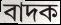
বাদক